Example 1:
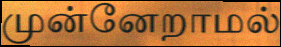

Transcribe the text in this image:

முன்னேறாமல்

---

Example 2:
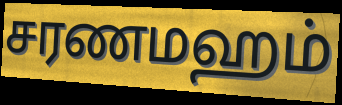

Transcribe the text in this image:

சரணமஹம்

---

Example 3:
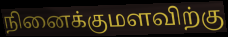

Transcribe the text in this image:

நினைக்குமளவிற்கு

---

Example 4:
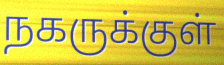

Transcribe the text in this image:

நகருக்குள்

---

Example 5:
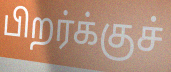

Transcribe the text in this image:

பிறர்க்குச்